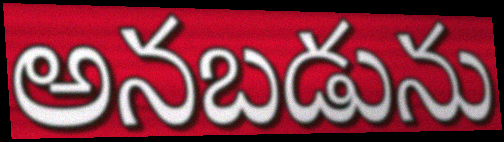
అనబడును